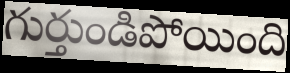
గుర్తుండిపోయింది